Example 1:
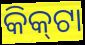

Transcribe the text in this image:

କିକ୍‍ଟା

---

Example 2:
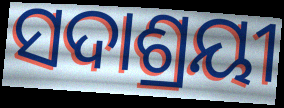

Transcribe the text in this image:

ସଦାଶ୍ରୟୀ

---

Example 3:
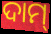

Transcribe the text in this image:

ଦାମ୍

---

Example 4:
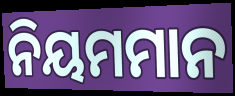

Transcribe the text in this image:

ନିୟମମାନ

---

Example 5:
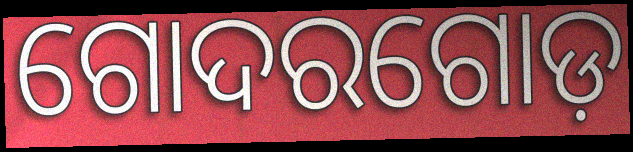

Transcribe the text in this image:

ଗୋଦରଗୋଡ଼